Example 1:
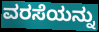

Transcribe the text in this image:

ವರಸೆಯನ್ನು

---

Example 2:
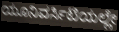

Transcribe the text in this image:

ಯೂನಿವರ್ಸಿಟಿಯಲ್ಲೇ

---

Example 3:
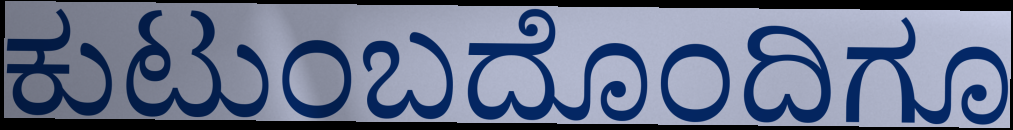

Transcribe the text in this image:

ಕುಟುಂಬದೊಂದಿಗೂ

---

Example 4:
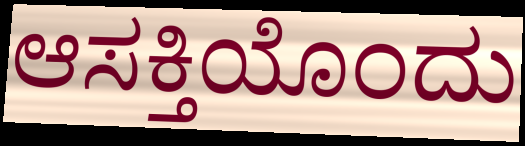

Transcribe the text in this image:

ಆಸಕ್ತಿಯೊಂದು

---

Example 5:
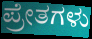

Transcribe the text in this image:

ಪ್ರೇತಗಳು